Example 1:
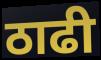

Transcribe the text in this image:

ठाढी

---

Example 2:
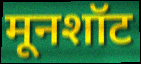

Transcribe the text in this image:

मूनशॉट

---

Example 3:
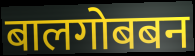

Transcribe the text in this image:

बालगोबबन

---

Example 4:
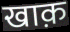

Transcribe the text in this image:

खाक़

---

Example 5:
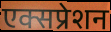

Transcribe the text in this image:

एक्सप्रेशन